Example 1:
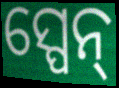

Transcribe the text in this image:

ସ୍ପେନ୍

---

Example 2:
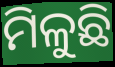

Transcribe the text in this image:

ମିଳୁଛି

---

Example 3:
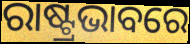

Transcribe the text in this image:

ରାଷ୍ଟ୍ରଭାବରେ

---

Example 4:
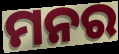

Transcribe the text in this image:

ମନର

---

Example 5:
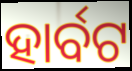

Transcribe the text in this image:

ହାର୍ବଟ